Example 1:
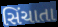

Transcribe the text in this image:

સિંચાતા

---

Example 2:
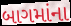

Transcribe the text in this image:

બાગમાંના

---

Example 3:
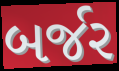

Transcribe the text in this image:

બર્જર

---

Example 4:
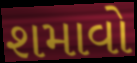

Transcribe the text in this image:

શમાવો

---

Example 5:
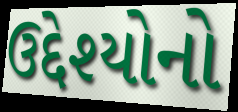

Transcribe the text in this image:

ઉદ્દેશ્યોનો